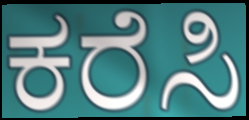
ಕರೆಸಿ